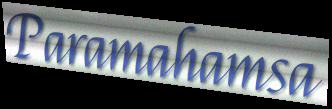
Paramahamsa